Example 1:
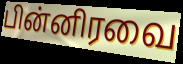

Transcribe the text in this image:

பின்னிரவை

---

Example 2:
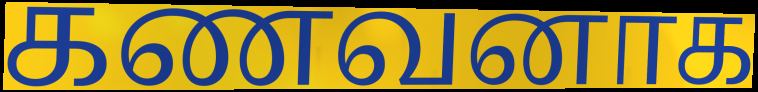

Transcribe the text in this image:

கணவனாக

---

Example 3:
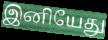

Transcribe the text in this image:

இனியேது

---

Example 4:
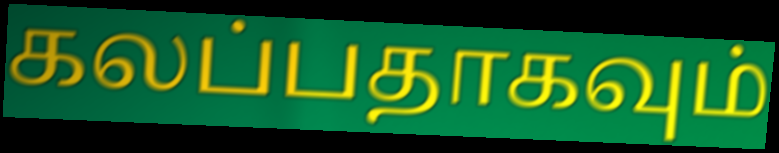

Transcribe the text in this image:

கலப்பதாகவும்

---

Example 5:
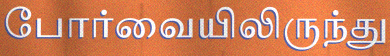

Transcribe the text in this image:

போர்வையிலிருந்து